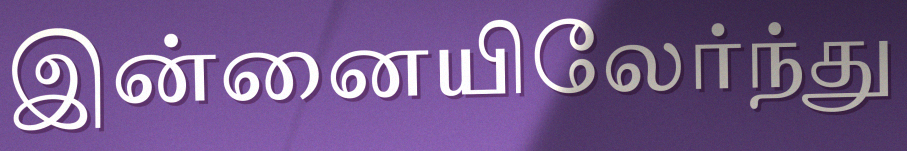
இன்னையிலேர்ந்து